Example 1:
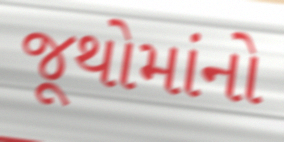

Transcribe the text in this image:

જૂથોમાંનો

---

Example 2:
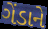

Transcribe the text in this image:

ગેંડાને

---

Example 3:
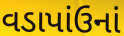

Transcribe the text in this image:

વડાપાંઉનાં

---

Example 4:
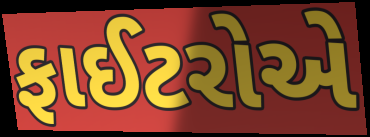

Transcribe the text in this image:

ફાઈટરોએ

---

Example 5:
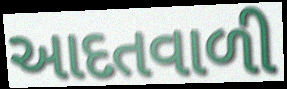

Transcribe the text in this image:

આદતવાળી